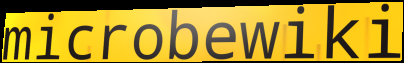
microbewiki